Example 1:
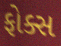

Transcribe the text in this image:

ફોક્સ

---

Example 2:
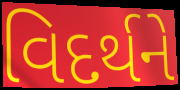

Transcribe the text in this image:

વિદર્થને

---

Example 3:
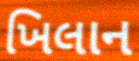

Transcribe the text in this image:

ખિલાન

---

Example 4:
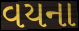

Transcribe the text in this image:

વયના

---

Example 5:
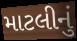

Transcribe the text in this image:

માટલીનું